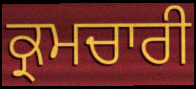
ਕ੍ਰਮਚਾਰੀ